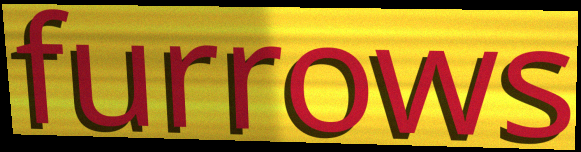
furrows